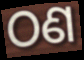
ଠଣ